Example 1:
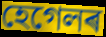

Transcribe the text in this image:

হেগেলৰ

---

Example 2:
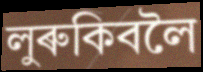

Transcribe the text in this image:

লুৰুকিবলৈ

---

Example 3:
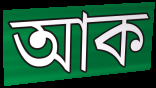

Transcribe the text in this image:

আক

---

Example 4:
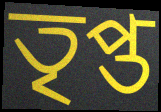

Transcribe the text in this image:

তৃপ্ত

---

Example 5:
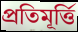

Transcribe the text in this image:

প্ৰতিমূৰ্ত্তি